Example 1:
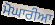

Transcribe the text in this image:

ਮੋਘਾਰੀਆ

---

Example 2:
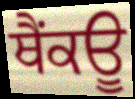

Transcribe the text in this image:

ਥੈਂਕਊ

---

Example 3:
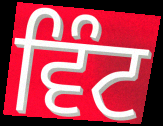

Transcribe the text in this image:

ਵਿੰਟ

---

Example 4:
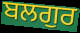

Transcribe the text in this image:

ਬਲਗੁਰ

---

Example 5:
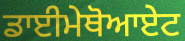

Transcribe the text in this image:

ਡਾਈਮੇਥੋਆਏਟ